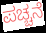
ಪಚ್ಚನೆ